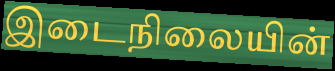
இடைநிலையின்